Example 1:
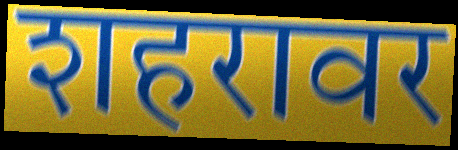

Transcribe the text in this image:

शहरावर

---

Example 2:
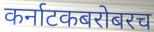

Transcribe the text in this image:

कर्नाटकबरोबरच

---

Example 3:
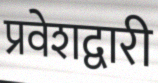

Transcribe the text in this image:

प्रवेशद्वारी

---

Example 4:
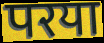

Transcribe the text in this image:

परया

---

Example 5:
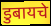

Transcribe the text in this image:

डुबायचे